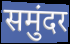
समुंदर